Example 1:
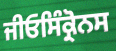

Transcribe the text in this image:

ਜੀਓਸਿੰਕ੍ਰੋਨਸ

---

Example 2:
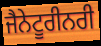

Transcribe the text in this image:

ਜੈਨੇਟੂਰੀਨਰੀ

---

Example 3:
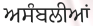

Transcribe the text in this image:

ਅਸੰਬਲੀਆਂ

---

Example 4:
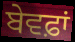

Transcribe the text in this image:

ਬੇਵਫ਼ਾਂ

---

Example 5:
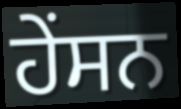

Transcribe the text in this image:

ਹੇਂਸਨ